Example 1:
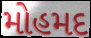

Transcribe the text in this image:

મોહમદ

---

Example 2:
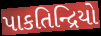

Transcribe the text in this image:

પાકતિન્દ્રિયો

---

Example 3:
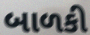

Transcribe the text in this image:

બાળકી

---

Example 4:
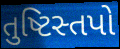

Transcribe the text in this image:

તુષ્ટિસ્તપો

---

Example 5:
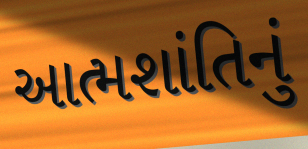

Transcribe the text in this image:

આત્મશાંતિનું